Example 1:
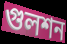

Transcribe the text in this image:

গুলশন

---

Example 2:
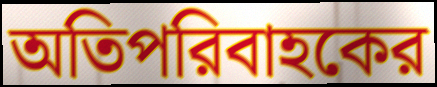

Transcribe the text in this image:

অতিপরিবাহকের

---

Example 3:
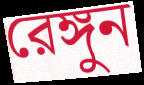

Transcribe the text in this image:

রেঙ্গুন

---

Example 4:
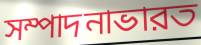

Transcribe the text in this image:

সম্পাদনাভারত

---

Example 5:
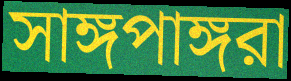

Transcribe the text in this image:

সাঙ্গপাঙ্গরা